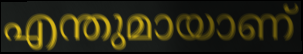
എന്തുമായാണ്